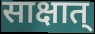
साक्षात्